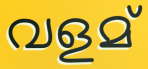
വളമ്